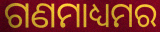
ଗଣମାଧ୍ୟମର